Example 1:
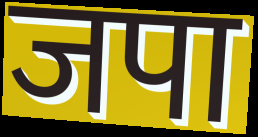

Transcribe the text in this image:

जपा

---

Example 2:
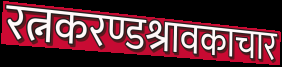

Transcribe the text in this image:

रत्नकरण्डश्रावकाचार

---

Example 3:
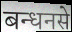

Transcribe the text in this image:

बन्धनसे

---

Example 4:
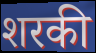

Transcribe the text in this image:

शरकी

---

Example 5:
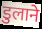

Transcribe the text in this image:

डुलाने